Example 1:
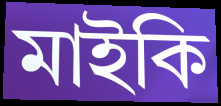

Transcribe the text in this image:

মাইকি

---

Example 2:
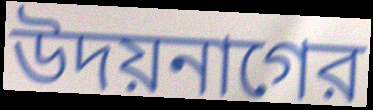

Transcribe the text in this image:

উদয়নাগের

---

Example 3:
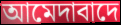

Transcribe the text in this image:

আমেদাবাদে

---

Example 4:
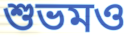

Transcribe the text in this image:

শুভমও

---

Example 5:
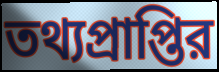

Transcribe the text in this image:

তথ্যপ্রাপ্তির